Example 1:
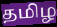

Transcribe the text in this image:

தமிழ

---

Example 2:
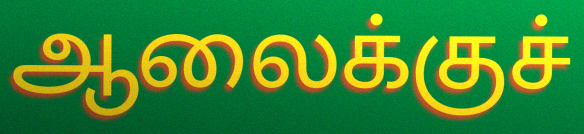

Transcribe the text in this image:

ஆலைக்குச்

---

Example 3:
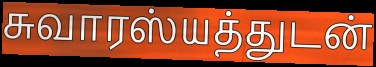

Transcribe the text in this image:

சுவாரஸ்யத்துடன்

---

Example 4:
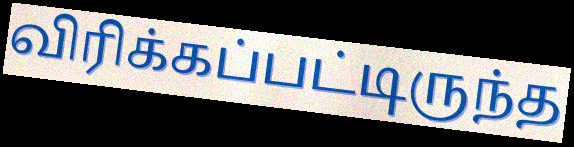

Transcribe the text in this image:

விரிக்கப்பட்டிருந்த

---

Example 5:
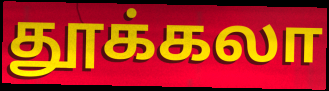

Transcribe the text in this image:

தூக்கலா